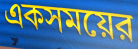
একসময়ের